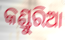
କଣ୍ଡୁରିଆ